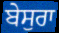
ਬੇਸੁਰਾ